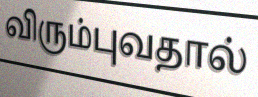
விரும்புவதால்